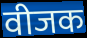
वीजक